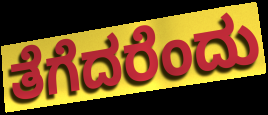
ತೆಗೆದರೆಂದು